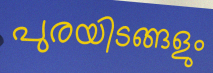
പുരയിടങ്ങളും